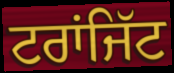
ਟਰਾਂਜਿੱਟ